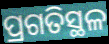
ପ୍ରଗତିସ୍ଥଳ